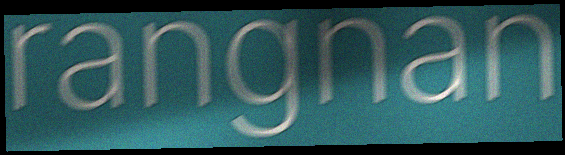
rangnan